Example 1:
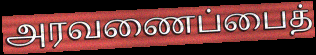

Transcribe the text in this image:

அரவணைப்பைத்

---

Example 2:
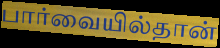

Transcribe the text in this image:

பார்வையில்தான்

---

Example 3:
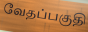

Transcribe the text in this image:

வேதப்பகுதி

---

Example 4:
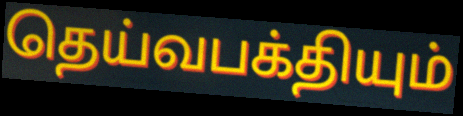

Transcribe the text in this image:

தெய்வபக்தியும்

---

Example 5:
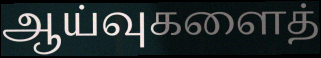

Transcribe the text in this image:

ஆய்வுகளைத்